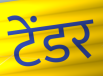
टेंडर